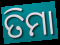
ତିମା